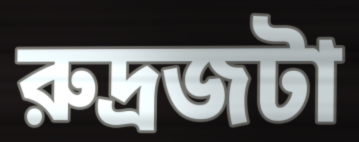
রুদ্রজটা